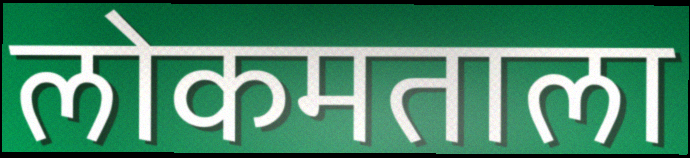
लोकमताला